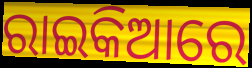
ରାଇକିଆରେ